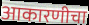
आकारणीचा